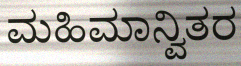
ಮಹಿಮಾನ್ವಿತರ